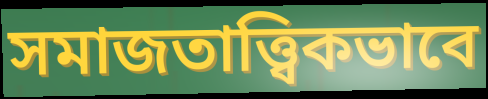
সমাজতাত্ত্বিকভাবে